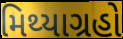
મિથ્યાગ્રહો